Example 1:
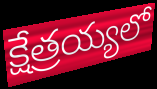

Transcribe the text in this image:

క్షేత్రయ్యలో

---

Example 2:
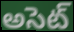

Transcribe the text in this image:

అసెట్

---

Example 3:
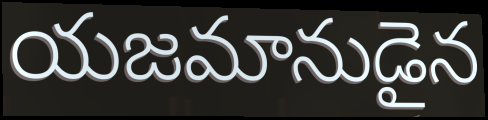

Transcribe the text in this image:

యజమానుడైన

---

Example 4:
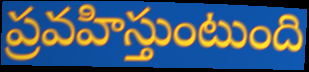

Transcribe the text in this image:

ప్రవహిస్తుంటుంది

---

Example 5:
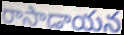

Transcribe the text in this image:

రాసాడాయన